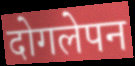
दोगलेपन